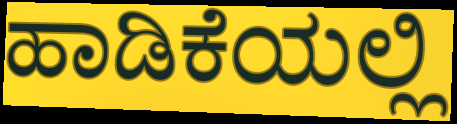
ಹಾಡಿಕೆಯಲ್ಲಿ